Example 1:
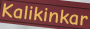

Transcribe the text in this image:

Kalikinkar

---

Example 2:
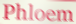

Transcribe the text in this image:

Phloem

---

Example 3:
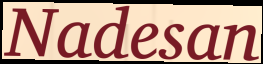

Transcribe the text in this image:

Nadesan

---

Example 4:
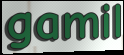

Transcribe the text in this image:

gamil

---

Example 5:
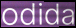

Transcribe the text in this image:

odida